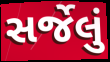
સર્જેલું